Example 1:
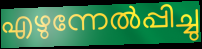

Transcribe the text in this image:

എഴുന്നേൽപ്പിച്ചു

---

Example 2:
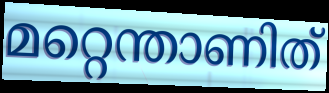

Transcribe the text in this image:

മറ്റെന്താണിത്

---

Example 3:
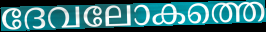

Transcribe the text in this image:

ദേവലോകത്തെ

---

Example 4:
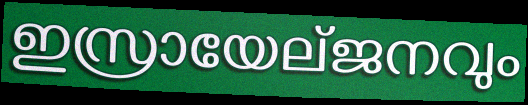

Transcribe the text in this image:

ഇസ്രായേല്ജനവും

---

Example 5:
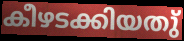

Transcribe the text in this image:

കീഴടക്കിയതു്